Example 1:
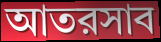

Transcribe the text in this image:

আতরসাব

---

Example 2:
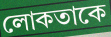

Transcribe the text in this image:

লোকতাকে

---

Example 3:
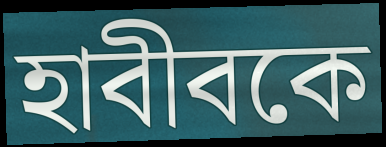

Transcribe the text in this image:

হাবীবকে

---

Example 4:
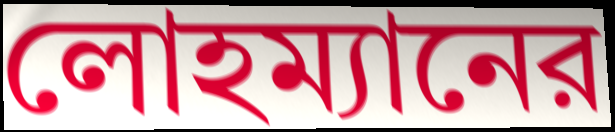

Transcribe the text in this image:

লোহম্যানের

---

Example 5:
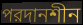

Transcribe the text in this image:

পরদানশীন